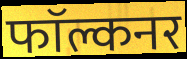
फॉल्कनर